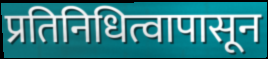
प्रतिनिधित्वापासून